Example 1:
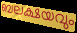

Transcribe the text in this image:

ബലക്ഷയവും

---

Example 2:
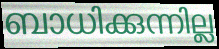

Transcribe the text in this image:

ബാധിക്കുന്നില്ല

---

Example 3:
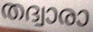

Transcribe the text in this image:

തദ്വാരാ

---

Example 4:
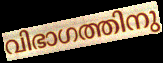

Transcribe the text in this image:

വിഭാഗത്തിനു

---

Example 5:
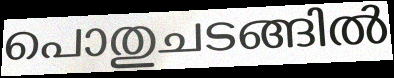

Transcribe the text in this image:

പൊതുചടങ്ങിൽ